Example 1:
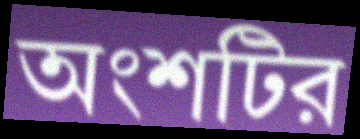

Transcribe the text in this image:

অংশটির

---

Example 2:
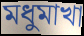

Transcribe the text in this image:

মধুমাখা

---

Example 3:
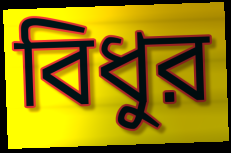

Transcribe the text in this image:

বিধুর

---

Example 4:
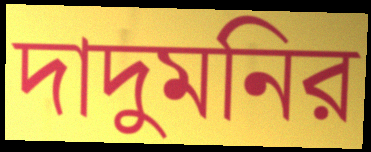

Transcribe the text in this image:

দাদুমনির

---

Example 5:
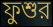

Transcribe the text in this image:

ফুশুর